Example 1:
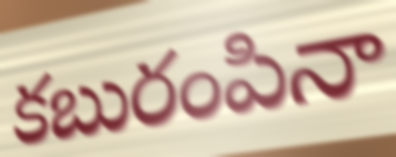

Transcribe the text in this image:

కబురంపినా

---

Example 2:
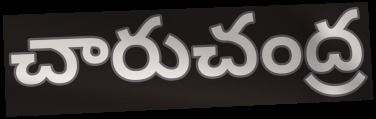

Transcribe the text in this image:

చారుచంద్ర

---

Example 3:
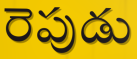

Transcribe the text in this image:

రెపుడు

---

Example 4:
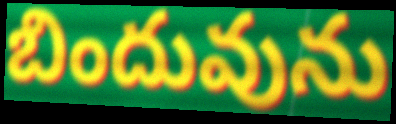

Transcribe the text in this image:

బిందువును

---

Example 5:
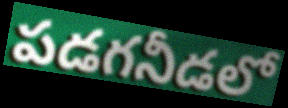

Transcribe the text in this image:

పడగనీడలో